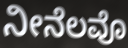
ನೀನೆಲವೊ